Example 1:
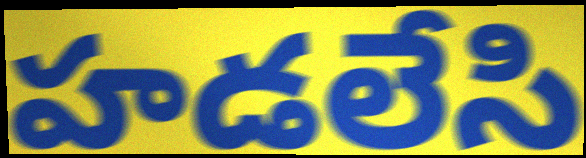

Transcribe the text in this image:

హడలేసి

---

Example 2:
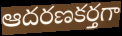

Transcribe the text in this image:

ఆదరణకర్తగా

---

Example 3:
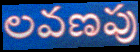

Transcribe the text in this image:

లవణపు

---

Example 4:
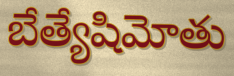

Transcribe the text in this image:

బేత్యేషిమోతు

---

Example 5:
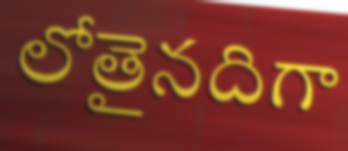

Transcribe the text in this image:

లోతైనదిగా